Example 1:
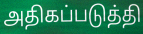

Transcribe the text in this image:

அதிகப்படுத்தி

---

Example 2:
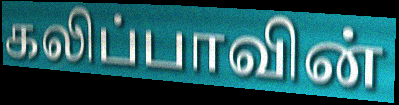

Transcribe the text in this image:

கலிப்பாவின்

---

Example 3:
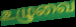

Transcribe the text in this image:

உழுவை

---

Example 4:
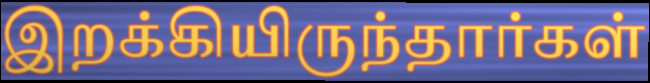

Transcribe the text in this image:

இறக்கியிருந்தார்கள்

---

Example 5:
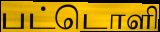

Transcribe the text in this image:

பட்டொளி